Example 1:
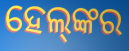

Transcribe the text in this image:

ହେଲ୍‌ଙ୍କର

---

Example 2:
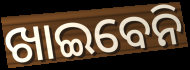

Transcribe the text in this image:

ଖାଇବେନି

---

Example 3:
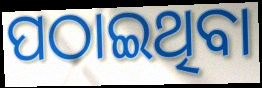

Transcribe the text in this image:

ପଠାଇଥିବା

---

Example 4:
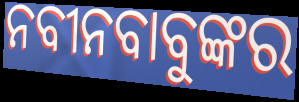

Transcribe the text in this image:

ନବୀନବାବୁଙ୍କର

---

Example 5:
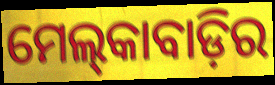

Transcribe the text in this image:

ମେଲ୍‌କାବାଡ଼ିର